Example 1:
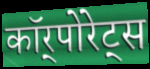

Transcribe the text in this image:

कॉर्पोरेट्‌स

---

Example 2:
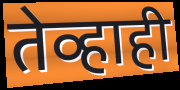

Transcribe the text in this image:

तेव्हाही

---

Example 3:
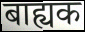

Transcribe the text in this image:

बाह्यक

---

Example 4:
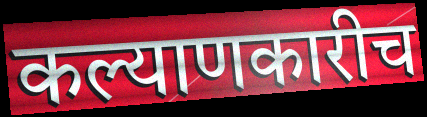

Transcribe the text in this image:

कल्याणकारीच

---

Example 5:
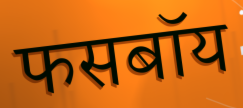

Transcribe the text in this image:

फसबॉय